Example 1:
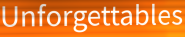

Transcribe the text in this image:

Unforgettables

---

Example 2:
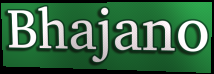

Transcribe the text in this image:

Bhajano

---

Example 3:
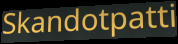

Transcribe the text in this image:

Skandotpatti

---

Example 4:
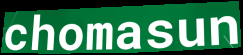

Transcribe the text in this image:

chomasun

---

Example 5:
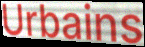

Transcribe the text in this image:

Urbains